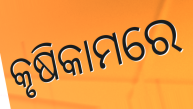
କୃଷିକାମରେ